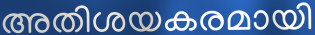
അതിശയകരമായി